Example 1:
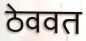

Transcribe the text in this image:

ठेववत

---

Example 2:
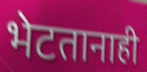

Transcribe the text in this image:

भेटतानाही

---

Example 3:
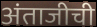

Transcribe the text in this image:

अंताजीची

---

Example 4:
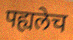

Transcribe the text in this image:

पह्यलेच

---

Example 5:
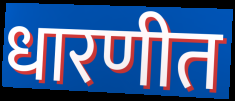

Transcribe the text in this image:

धारणीत